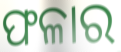
ଫଳାର